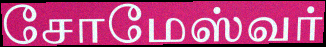
சோமேஸ்வர்